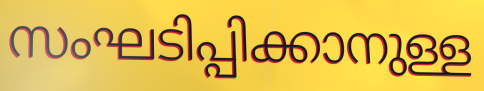
സംഘടിപ്പിക്കാനുള്ള